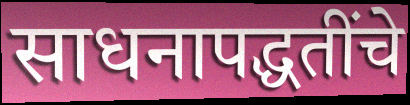
साधनापद्धतींचे